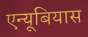
एन्यूबियास